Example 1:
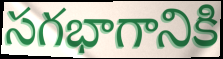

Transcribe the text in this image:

సగభాగానికి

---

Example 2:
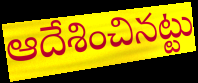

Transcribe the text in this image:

ఆదేశించినట్టు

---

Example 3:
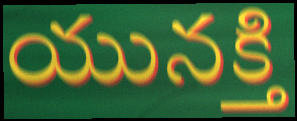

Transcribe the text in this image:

యునక్తి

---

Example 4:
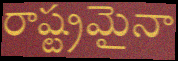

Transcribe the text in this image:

రాష్ట్రమైనా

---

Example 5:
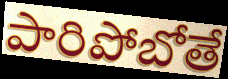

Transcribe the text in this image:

పారిపోబోతే